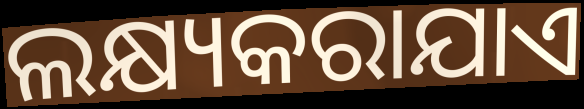
ଲକ୍ଷ୍ୟକରାଯାଏ